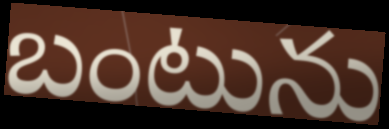
బంటును